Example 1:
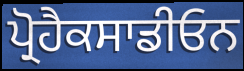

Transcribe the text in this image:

ਪ੍ਰੋਹੈਕਸਾਡੀਓਨ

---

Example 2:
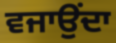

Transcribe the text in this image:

ਵਜਾਉਂਦਾ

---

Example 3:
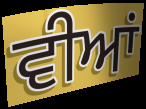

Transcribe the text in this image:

ਵੀਆਂ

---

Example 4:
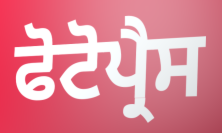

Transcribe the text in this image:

ਫੋਟੋਪ੍ਰੈਸ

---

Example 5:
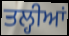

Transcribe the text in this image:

ਤਲ੍ਹੀਆਂ